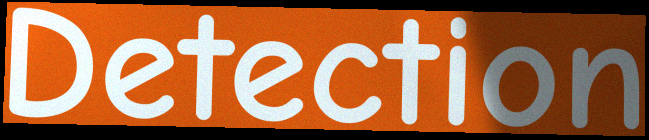
Detection